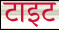
टाइट